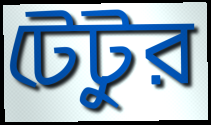
টেটুর